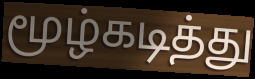
மூழ்கடித்து